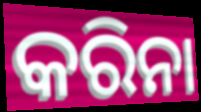
କରିନା